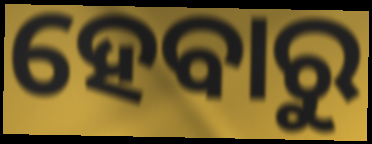
ହେବାରୁ